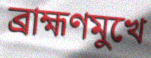
ব্রাহ্মণমুখে